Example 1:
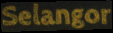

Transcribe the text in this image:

Selangor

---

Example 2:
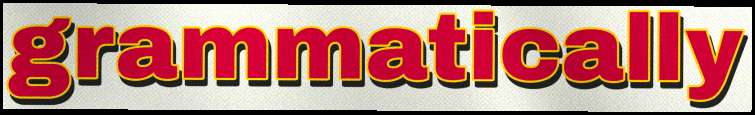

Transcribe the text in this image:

grammatically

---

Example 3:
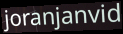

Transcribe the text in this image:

joranjanvid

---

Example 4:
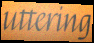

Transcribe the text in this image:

uttering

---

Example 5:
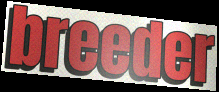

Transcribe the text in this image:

breeder